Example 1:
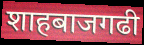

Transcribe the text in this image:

शाहबाजगढी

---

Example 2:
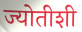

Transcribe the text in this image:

ज्योतीशी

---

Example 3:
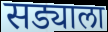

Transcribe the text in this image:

सड्याला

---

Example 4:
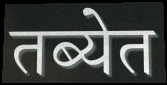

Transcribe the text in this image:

तब्येत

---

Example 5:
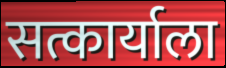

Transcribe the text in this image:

सत्कार्याला